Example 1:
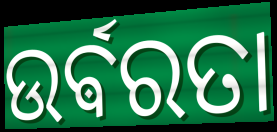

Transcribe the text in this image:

ଉର୍ଵରତା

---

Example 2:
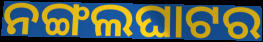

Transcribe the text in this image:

ନଙ୍ଗଲଘାଟର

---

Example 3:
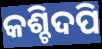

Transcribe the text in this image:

କଶ୍ଚିଦପି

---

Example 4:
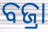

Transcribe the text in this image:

ବଜ୍ରା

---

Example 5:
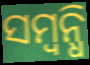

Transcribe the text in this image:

ସମ୍ବନ୍ଧି